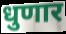
धुणार